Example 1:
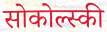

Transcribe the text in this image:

सोकोल्स्की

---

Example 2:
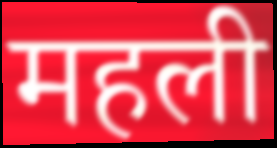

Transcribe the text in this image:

महली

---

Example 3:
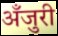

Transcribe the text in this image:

अँजुरी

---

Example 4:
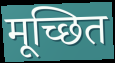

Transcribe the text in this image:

मूच्छित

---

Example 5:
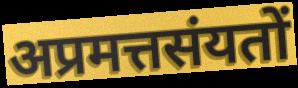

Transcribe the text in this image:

अप्रमत्तसंयतों